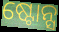
ଷ୍ଟୋନ୍ସ